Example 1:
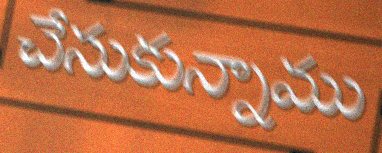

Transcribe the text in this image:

చేసుకున్నాము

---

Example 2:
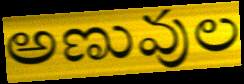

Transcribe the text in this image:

అణువుల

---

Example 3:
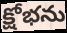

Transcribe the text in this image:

క్షోభను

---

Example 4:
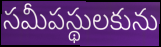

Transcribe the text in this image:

సమీపస్థులకును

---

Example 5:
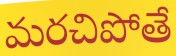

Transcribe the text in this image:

మరచిపోతే